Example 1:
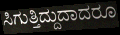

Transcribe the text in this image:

ಸಿಗುತ್ತಿದ್ದುದಾದರೂ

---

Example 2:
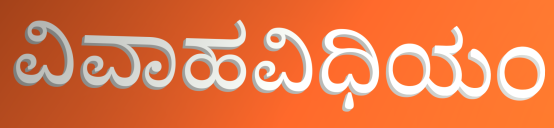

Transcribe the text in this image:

ವಿವಾಹವಿಧಿಯಂ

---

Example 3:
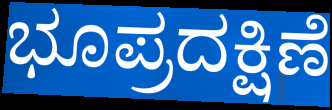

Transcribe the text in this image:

ಭೂಪ್ರದಕ್ಷಿಣೆ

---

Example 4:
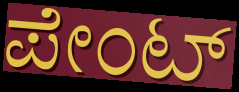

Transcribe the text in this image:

ಪೇಂಟ್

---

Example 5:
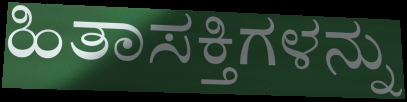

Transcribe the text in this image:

ಹಿತಾಸಕ್ತಿಗಳನ್ನು